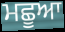
ਮਛੂਆ